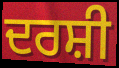
ਦਰਸ਼ੀ